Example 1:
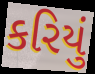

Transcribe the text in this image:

કરિયું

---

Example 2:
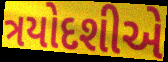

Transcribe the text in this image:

ત્રયોદશીએ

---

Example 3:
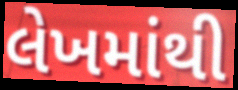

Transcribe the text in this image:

લેખમાંથી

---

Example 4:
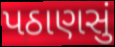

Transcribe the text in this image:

પઠાણસું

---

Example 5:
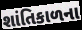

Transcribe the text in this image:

શાંતિકાળના